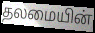
தலமையின்